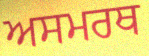
ਅਸਮਰਥ